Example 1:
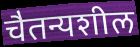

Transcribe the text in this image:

चैतन्यशील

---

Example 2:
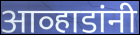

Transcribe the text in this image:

आव्हाडांनी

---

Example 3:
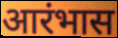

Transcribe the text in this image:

आरंभास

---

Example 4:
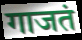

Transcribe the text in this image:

गाजतं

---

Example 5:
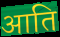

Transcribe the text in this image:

आति